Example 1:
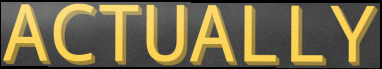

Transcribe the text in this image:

ACTUALLY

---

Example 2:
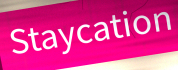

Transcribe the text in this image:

Staycation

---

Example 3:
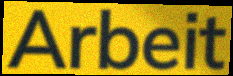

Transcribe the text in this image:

Arbeit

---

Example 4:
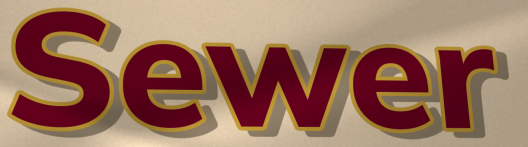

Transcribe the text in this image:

Sewer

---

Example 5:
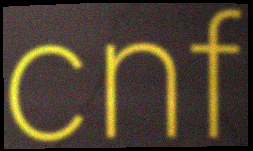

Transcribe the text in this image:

cnf